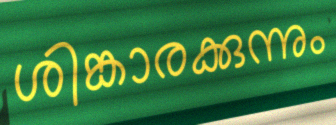
ശിങ്കാരക്കുന്നും